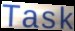
Task